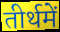
तीर्थमें